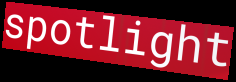
spotlight